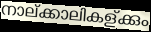
നാല്ക്കാലികള്ക്കും